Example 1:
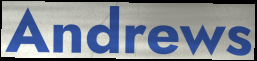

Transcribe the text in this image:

Andrews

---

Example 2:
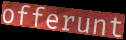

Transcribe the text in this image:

offerunt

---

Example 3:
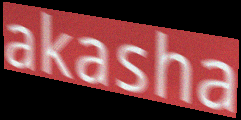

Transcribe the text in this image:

akasha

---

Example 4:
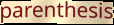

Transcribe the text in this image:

parenthesis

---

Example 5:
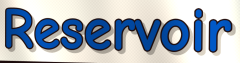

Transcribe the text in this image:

Reservoir